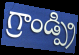
గ్రాండ్ప్రి